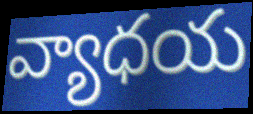
వ్యాధయ